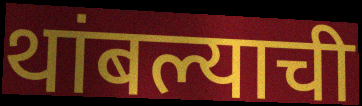
थांबल्याची